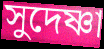
সুদেষ্ণা